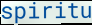
spiritu